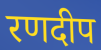
रणदीप